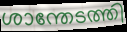
ശാന്തേടത്തി